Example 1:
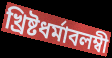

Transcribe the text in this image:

খ্রিষ্টধর্মাবলম্বী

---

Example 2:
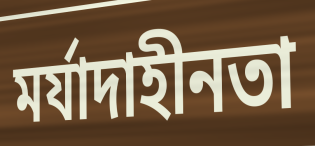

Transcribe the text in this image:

মর্যাদাহীনতা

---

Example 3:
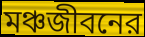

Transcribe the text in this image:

মঞ্চজীবনের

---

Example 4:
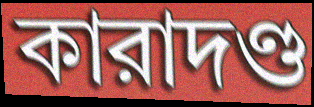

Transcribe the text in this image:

কারাদণ্ড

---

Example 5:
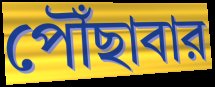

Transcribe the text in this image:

পৌঁছাবার